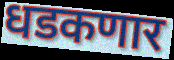
धडकणार